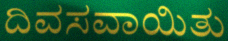
ದಿವಸವಾಯಿತು